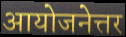
आयोजनेत्तर